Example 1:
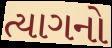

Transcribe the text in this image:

ત્યાગનો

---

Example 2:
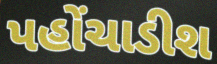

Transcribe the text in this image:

પહોંચાડીશ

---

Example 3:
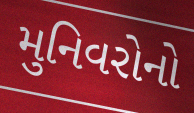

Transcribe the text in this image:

મુનિવરોનો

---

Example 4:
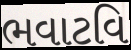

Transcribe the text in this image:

ભવાટવિ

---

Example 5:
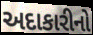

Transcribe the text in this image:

અદાકારીનો